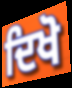
ਦਿਖੋ